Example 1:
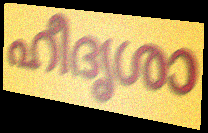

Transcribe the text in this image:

ഹീദൃശാ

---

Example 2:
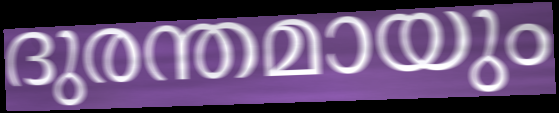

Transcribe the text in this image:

ദുരന്തമായും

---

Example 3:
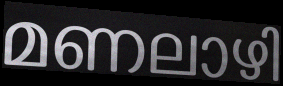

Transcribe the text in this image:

മണലാഴി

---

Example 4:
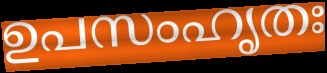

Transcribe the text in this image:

ഉപസംഹൃതഃ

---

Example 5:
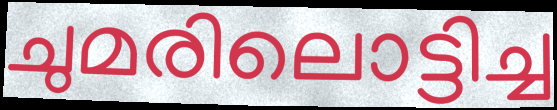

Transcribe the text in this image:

ചുമരിലൊട്ടിച്ച